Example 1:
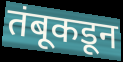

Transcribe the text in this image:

तंबूकडून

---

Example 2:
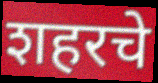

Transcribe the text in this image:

शहरचे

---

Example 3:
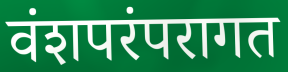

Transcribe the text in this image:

वंशपरंपरागत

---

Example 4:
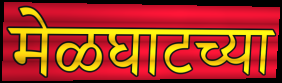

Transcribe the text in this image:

मेळघाटच्या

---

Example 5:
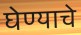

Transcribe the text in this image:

घेण्याचे